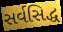
સર્વસિદ્ધ